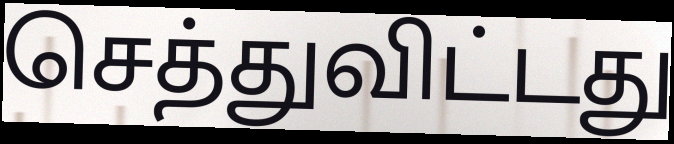
செத்துவிட்டது